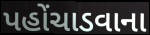
પહોંચાડવાના